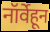
नॉर्वेहून